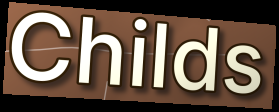
Childs